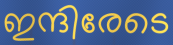
ഇന്ദിരേടെ